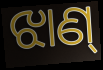
ଝାଣ୍